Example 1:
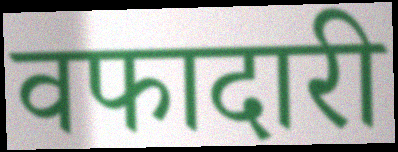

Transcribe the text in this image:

वफादारी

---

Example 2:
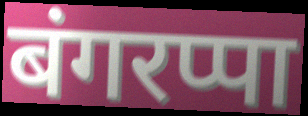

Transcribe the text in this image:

बंगरप्पा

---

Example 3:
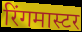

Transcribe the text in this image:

रिंगमास्टर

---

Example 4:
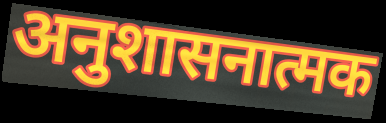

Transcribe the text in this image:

अनुशासनात्मक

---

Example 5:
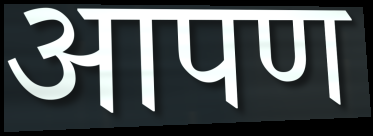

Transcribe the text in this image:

आपण